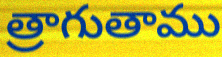
త్రాగుతాము